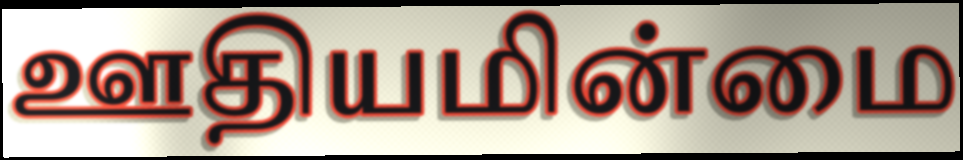
ஊதியமின்மை